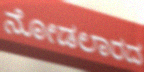
ನೋಡಲಾರದ